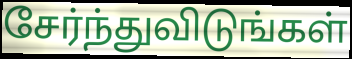
சேர்ந்துவிடுங்கள்